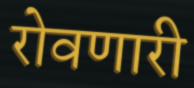
रोवणारी